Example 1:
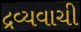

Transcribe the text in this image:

દ્રવ્યવાચી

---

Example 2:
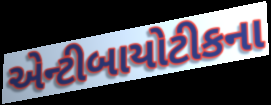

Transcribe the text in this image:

એન્ટીબાયોટીકના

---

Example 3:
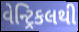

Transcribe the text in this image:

વેન્ટ્રિકલથી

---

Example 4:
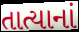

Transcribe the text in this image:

તાત્યાનાં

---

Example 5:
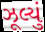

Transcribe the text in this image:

ઝૂલ્યું